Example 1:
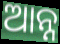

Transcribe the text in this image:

ଆନ୍ନ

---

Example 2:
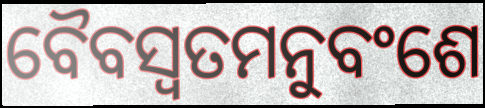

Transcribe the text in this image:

ବୈବସ୍ଵତମନୁବଂଶେ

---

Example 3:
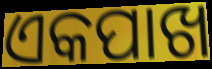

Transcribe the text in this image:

ଏକପାଖ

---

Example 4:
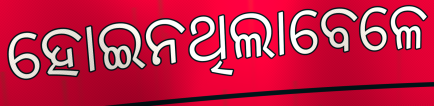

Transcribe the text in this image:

ହୋଇନଥିଲାବେଳେ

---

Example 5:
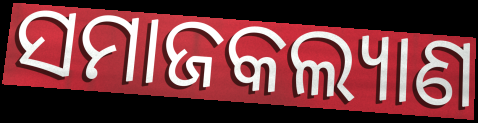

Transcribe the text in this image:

ସମାଜକଲ୍ୟାଣ